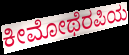
ಕೀಮೋಥೆರಪಿಯ